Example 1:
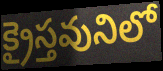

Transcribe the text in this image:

క్రైస్తవునిలో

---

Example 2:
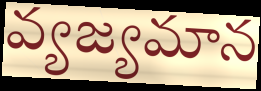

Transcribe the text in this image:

వ్యజ్యమాన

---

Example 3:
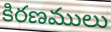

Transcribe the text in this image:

కిరణములు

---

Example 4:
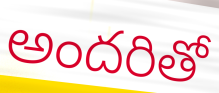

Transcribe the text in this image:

అందరితో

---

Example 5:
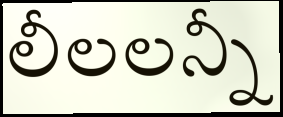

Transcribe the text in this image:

లీలలన్నీ